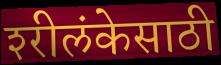
श्रीलंकेसाठी